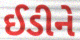
ઈડીને